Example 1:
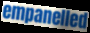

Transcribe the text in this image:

empanelled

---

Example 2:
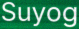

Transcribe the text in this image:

Suyog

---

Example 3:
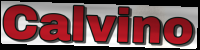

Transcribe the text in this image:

Calvino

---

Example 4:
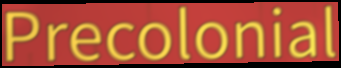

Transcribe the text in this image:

Precolonial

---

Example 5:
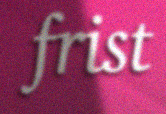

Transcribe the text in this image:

frist